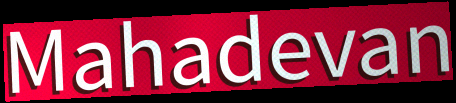
Mahadevan